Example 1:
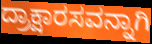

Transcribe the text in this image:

ದ್ರಾಕ್ಷಾರಸವನ್ನಾಗಿ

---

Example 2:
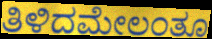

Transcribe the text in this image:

ತಿಳಿದಮೇಲಂತೂ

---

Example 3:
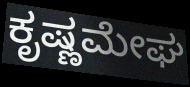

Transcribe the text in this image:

ಕೃಷ್ಣಮೇಘ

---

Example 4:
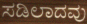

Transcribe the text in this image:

ಸಡಿಲಾದವು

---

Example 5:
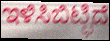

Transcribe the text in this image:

ಇಳಿಸಿಬಿಟ್ಟಿದೆ